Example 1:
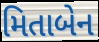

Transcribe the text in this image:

મિતાબેન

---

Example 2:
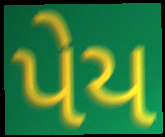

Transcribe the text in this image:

પેય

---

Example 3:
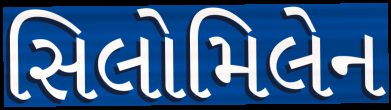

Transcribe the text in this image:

સિલોમિલેન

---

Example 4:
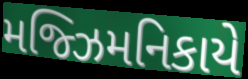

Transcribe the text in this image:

મજ્ઝિમનિકાયે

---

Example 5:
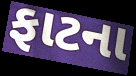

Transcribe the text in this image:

ફાટના